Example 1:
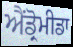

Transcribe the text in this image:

ਐਂਡ੍ਰੋਮੀਡਾ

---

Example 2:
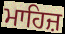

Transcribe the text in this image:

ਮਾਹਿਜ਼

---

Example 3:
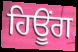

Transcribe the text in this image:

ਹਿਊੰਗ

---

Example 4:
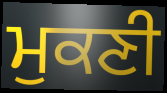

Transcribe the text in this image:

ਮੁਕਣੀ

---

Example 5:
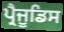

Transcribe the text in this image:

ਪ੍ਰੈਜੂਡਿਸ